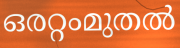
ഒരറ്റംമുതൽ